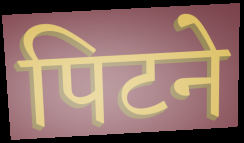
पिटने